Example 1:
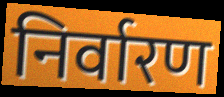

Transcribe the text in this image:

निर्वारण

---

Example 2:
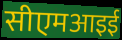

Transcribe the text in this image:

सीएमआइई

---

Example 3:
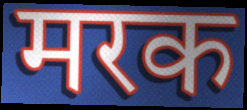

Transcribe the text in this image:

मरक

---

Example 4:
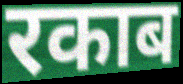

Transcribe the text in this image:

रकाब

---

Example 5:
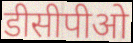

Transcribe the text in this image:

डीसीपीओ